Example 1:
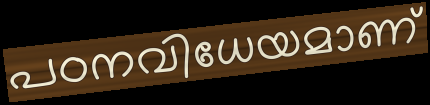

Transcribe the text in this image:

പഠനവിധേയമാണ്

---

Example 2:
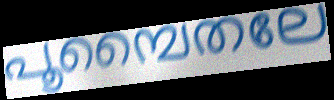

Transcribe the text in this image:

പൂമ്പൈതലേ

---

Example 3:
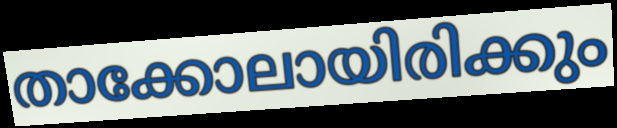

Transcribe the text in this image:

താക്കോലായിരിക്കും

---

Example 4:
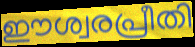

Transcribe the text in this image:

ഈശ്വരപ്രീതി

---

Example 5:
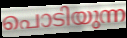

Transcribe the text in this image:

പൊടിയുന്ന